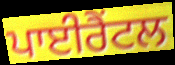
ਪਾਈਰੈਂਟਲ